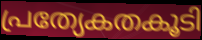
പ്രത്യേകതകൂടി